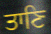
ਤਾਣਿ